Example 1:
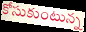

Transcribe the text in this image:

కోసుకుంటున్న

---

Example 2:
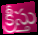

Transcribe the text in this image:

క్రీస్తు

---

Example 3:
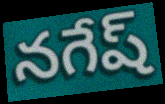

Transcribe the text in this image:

నగేష్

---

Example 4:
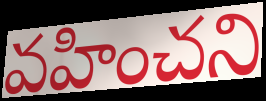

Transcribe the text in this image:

వహించని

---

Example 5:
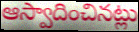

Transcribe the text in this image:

ఆస్వాదించినట్లు